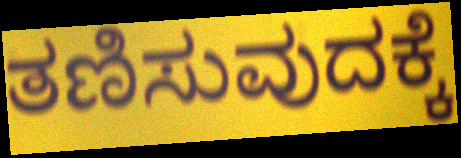
ತಣಿಸುವುದಕ್ಕೆ